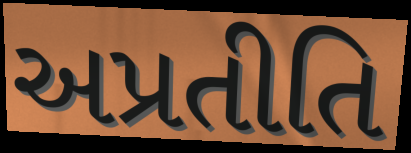
અપ્રતીતિ